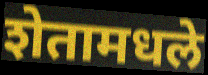
शेतामधले